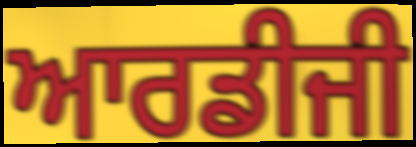
ਆਰਡੀਜੀ